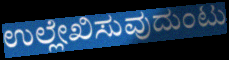
ಉಲ್ಲೇಖಿಸುವುದುಂಟು